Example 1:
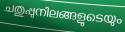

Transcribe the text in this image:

ചതുപ്പുനിലങ്ങളുടെയും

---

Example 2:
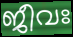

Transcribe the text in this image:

ജീവഃ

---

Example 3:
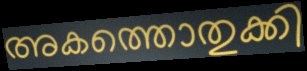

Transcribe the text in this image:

അകത്തൊതുക്കി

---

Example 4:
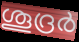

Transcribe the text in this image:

ശൂദ്രർ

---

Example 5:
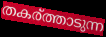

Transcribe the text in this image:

തകര്ത്താടുന്ന